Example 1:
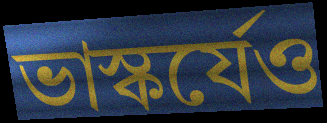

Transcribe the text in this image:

ভাস্কর্যেও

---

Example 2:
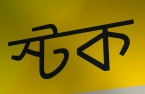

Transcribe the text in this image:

স্টক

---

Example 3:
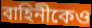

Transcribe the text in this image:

বাহিনীকেও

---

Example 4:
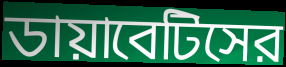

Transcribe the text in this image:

ডায়াবেটিসের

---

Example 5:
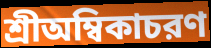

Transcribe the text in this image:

শ্রীঅম্বিকাচরণ